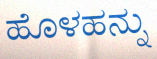
ಹೊಳಹನ್ನು